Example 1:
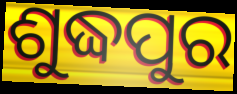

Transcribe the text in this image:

ଶୁଦ୍ଧପୁର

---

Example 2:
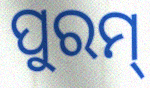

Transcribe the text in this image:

ପୁରମ୍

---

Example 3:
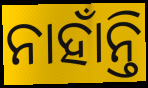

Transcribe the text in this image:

ନାହାଁନ୍ତି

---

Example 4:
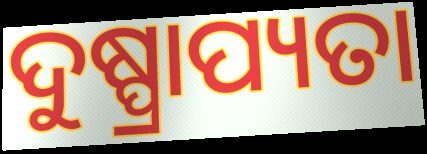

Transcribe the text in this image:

ଦୁଷ୍ପ୍ରାପ୍ୟତା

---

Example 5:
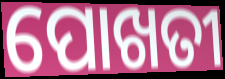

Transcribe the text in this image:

ପୋଖତୀ